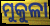
ମୁକୁଳା